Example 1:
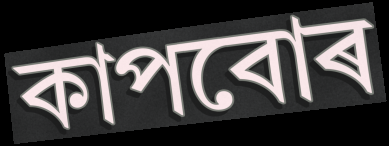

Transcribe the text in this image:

কাপবোৰ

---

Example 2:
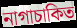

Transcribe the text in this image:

নাগাচাকিত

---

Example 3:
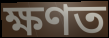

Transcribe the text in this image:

ক্ষণত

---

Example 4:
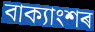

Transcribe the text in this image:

বাক্যাংশৰ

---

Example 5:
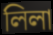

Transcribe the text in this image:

লিলা